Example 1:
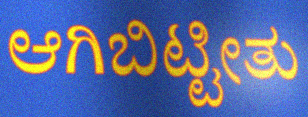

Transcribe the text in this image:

ಆಗಿಬಿಟ್ಟೀತು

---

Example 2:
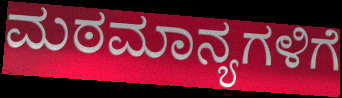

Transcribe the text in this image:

ಮಠಮಾನ್ಯಗಳಿಗೆ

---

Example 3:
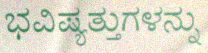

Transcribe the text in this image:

ಭವಿಷ್ಯತ್ತುಗಳನ್ನು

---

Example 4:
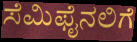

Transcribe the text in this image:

ಸೆಮಿಫೈನಲಿಗೆ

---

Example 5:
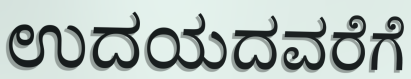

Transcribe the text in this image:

ಉದಯದವರೆಗೆ